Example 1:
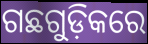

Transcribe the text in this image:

ଗଛଗୁଡ଼ିକରେ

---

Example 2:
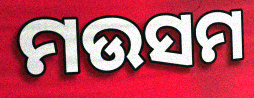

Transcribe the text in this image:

ମଉସମ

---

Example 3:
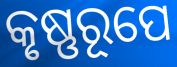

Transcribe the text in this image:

କୃଷ୍ଣରୂପେ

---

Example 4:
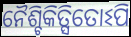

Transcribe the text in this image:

ନୈଶ୍ଚିକିତ୍ସିତୋଽପି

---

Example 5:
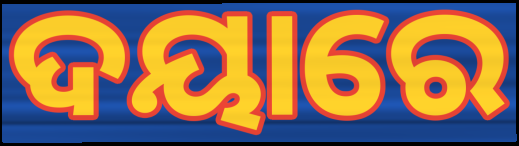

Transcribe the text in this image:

ଦୟାରେ